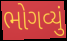
ભોગવ્યું